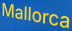
Mallorca